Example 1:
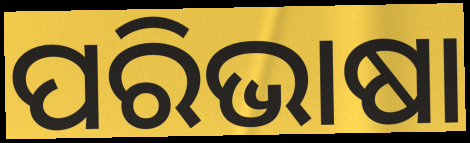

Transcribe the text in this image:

ପରିଭାଷା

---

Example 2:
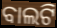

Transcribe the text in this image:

ବାଲଟି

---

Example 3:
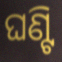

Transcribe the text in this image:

ଘଣ୍ଟି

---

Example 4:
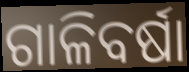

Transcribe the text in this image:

ଗାଳିବର୍ଷା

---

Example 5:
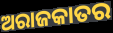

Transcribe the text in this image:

ଅରାଜକାତର